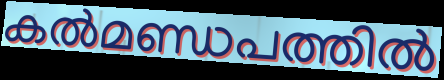
കൽമണ്ഡപത്തിൽ